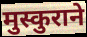
मुस्कुराने